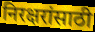
निरक्षरांसाठी